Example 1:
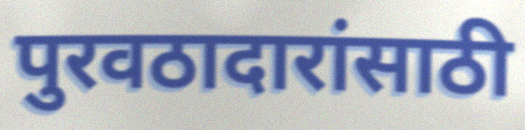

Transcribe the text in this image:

पुरवठादारांसाठी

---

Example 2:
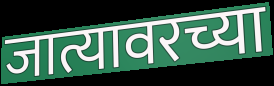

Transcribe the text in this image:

जात्यावरच्या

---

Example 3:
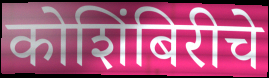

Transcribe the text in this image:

कोशिंबिरीचे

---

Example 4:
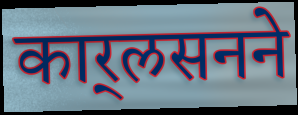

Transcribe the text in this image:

कार्लसनने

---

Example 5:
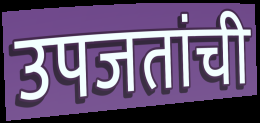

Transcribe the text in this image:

उपजतांची